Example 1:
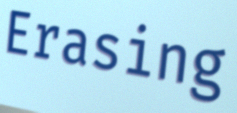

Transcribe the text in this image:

Erasing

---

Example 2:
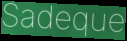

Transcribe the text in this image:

Sadeque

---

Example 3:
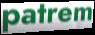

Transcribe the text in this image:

patrem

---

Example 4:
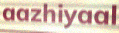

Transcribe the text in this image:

aazhiyaal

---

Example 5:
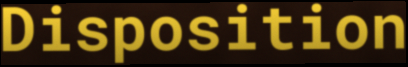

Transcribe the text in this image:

Disposition